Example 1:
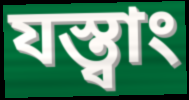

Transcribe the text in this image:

যস্ত্বাং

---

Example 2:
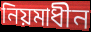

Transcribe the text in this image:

নিয়মাধীন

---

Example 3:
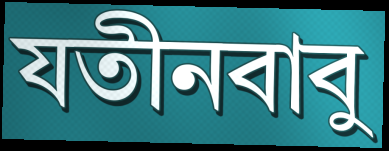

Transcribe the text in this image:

যতীনবাবু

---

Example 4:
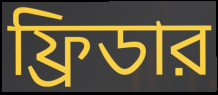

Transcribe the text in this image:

ফ্রিডার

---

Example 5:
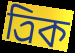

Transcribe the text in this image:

ত্রিক